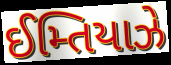
ઈમ્તિયાઝે